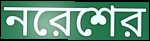
নরেশের